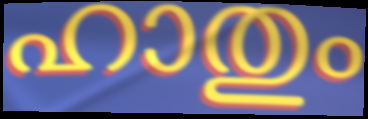
ഹാതും